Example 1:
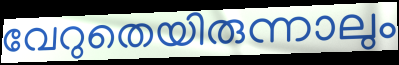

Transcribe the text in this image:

വേറുതെയിരുന്നാലും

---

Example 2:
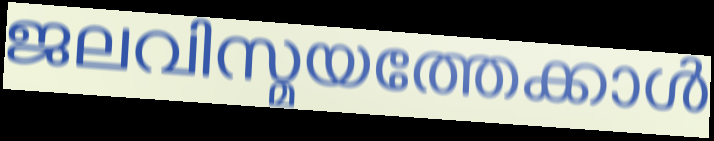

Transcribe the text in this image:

ജലവിസ്മയത്തേക്കാൾ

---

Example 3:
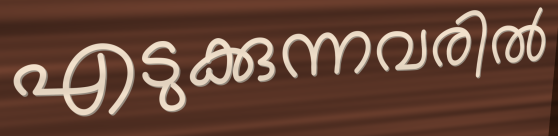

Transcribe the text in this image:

എടുക്കുന്നവരിൽ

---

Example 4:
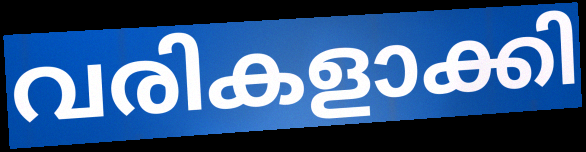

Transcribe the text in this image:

വരികളാക്കി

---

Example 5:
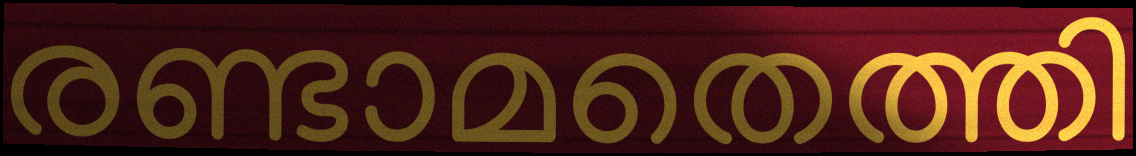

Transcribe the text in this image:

രണ്ടാമതെത്തി